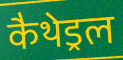
कैथेड्रल